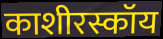
काशीरस्कॉय